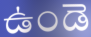
ఉండె